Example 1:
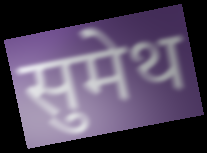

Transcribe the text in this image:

सुमेथ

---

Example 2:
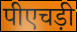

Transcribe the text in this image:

पीएचड़ी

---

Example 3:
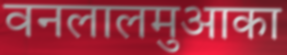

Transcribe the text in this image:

वनलालमुआका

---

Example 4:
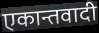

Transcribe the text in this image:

एकान्तवादी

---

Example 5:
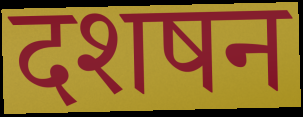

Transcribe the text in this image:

दशषन